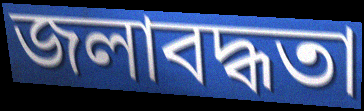
জলাবদ্ধতা